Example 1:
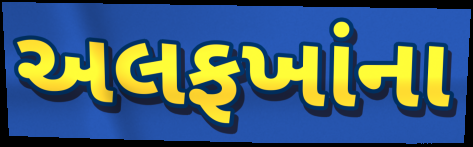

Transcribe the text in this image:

અલફખાંના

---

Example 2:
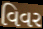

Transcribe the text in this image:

વિવર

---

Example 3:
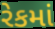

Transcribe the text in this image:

રેકમાં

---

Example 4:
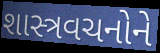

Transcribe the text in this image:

શાસ્ત્રવચનોને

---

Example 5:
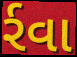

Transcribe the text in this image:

ર્રવા